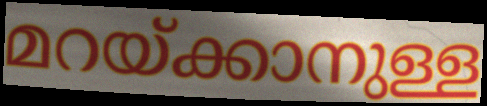
മറയ്ക്കാനുള്ള